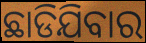
ଛାଡିଯିବାର